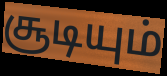
சூடியும்